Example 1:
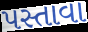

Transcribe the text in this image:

પસ્તાવા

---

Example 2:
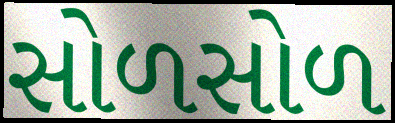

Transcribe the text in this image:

સોળસોળ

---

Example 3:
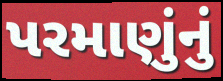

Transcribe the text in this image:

પરમાણુંનું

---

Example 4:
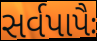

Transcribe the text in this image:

સર્વપાપૈઃ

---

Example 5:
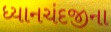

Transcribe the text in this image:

ધ્યાનચંદજીના